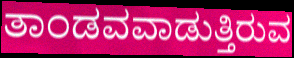
ತಾಂಡವವಾಡುತ್ತಿರುವ